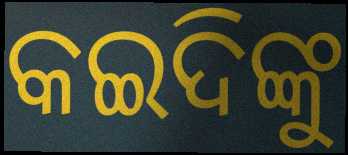
କଇଦିଙ୍କୁ